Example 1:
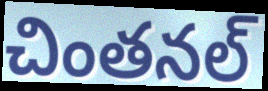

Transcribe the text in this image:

చింతనల్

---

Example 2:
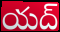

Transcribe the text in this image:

యద్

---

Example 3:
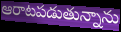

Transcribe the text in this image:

ఆరాటపడుతున్నాను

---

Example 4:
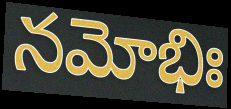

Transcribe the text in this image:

నమోభిః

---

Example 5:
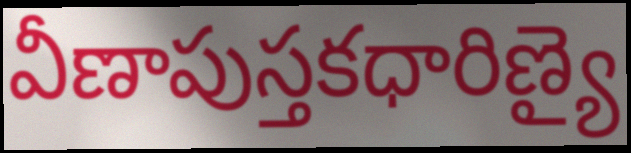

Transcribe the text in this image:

వీణాపుస్తకధారిణ్యై